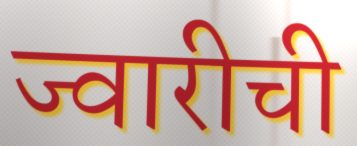
ज्वारीची